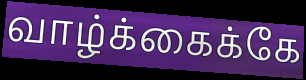
வாழ்க்கைக்கே